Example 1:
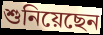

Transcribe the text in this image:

শুনিয়েছেন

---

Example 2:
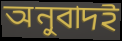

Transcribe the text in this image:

অনুবাদই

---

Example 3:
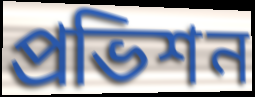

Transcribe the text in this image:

প্রভিশন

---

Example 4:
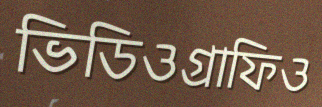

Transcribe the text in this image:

ভিডিওগ্রাফিও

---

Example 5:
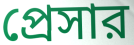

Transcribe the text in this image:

প্রেসার